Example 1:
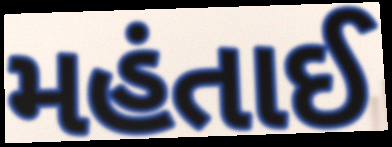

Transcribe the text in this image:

મહંતાઈ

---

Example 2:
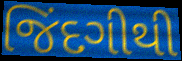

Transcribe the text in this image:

જિંદગીથી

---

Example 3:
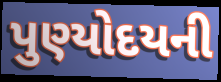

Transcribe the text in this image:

પુણ્યોદયની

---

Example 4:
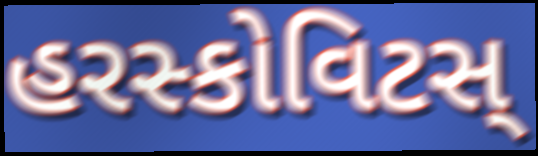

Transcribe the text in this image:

હરસ્કોવિટસ્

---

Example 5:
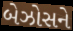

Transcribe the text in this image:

બેઝોસને